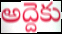
అద్దెకు